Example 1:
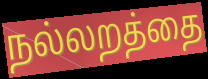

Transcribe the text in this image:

நல்லறத்தை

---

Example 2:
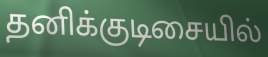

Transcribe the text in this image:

தனிக்குடிசையில்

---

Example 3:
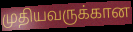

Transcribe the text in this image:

முதியவருக்கான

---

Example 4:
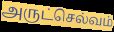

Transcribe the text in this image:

அருட்செல்வம்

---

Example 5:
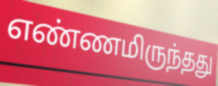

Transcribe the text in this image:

எண்ணமிருந்தது